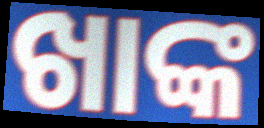
ଖାଙ୍କ